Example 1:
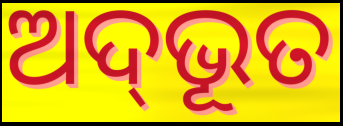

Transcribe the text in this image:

ଅଦ୍‍ଭୂତ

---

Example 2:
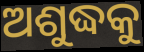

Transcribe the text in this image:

ଅଶୁଦ୍ଧକୁ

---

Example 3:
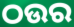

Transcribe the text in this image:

ଠଉର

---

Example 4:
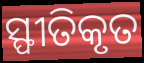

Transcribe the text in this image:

ସ୍ଫୀତିକୃତ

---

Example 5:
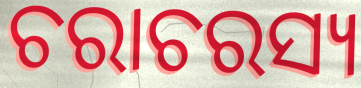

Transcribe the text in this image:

ଚରାଚରସ୍ୟ